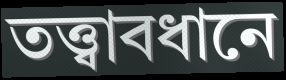
তত্ত্বাবধানে